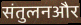
संतुलनऔर